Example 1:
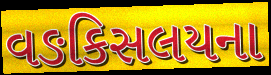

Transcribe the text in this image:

વઙકિસલયના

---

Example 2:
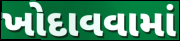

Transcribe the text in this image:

ખોદાવવામાં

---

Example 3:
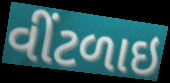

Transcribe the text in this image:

વીંટળાઇ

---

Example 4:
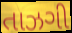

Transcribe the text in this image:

તાઝગી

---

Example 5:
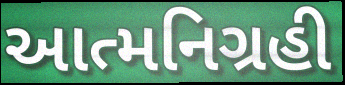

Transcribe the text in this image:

આત્મનિગ્રહી